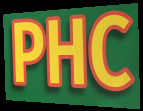
PHC